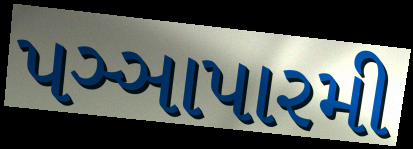
પઞ્ઞાપારમી